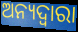
ଅନ୍ୟଦ୍ଵାରା